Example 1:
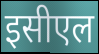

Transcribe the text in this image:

इसीएल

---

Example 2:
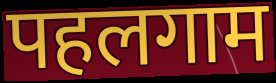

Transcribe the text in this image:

पहलगाम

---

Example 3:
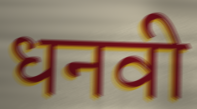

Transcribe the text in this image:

धनवी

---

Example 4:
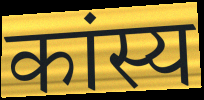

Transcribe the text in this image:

कांस्य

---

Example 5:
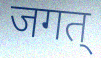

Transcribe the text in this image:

जगत्